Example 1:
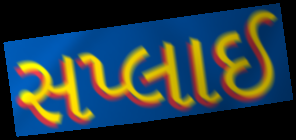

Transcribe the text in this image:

સપ્લાઈ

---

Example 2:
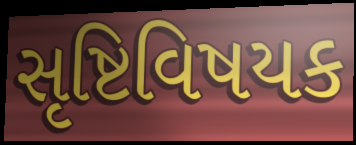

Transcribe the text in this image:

સૃષ્ટિવિષયક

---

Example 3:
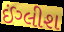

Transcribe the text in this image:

ઈંગ્લીશ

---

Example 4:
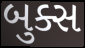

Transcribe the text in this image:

બુક્સ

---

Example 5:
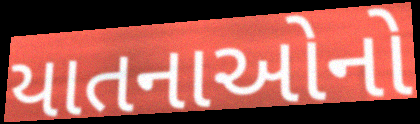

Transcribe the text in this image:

યાતનાઓનો